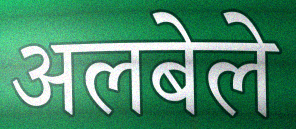
अलबेले